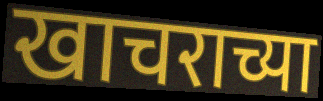
खाचराच्या